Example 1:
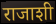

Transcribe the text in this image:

राजाशी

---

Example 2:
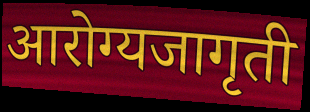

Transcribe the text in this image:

आरोग्यजागृती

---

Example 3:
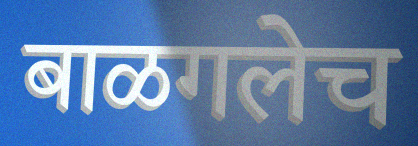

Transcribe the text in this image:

बाळगलेच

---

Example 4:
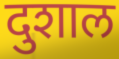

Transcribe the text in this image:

दुशाल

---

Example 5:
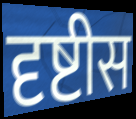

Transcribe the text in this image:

दृष्टीस